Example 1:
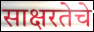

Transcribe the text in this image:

साक्षरतेचे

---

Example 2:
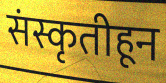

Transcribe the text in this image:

संस्कृतीहून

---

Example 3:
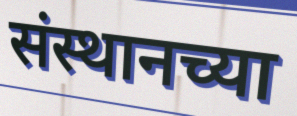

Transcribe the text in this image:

संस्थानच्या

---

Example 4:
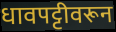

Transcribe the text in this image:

धावपट्टीवरून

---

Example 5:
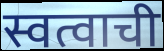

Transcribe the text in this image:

स्वत्वाची